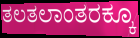
ತಲತಲಾಂತರಕ್ಕೂ